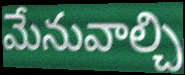
మేనువాల్చి